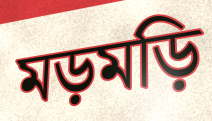
মড়মড়ি